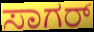
ಸಾಗರ್